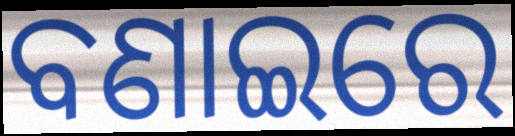
ବଣାଇରେ